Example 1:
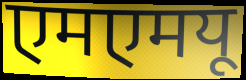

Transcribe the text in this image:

एमएमयू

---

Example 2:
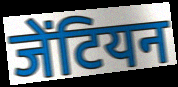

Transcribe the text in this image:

जेंटियन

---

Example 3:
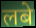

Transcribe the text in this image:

लबे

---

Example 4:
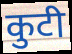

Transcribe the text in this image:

कुटी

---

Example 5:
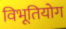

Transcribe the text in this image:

विभूतियोग